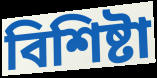
বিশিষ্টা